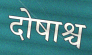
दोषाश्च